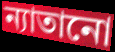
ন্যাতানো